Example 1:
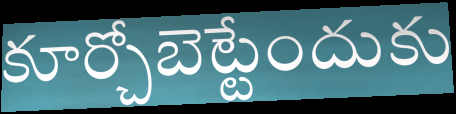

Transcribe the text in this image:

కూర్చోబెట్టేందుకు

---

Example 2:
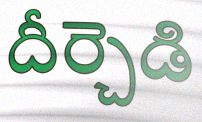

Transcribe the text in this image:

దీర్చెడి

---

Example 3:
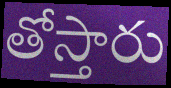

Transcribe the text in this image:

తోస్తారు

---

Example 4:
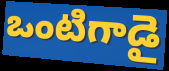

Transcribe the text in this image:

ఒంటిగాడై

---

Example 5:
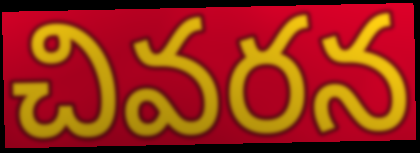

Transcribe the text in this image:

చివరన